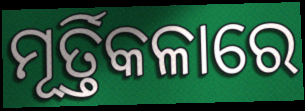
ମୂର୍ତ୍ତିକଳାରେ